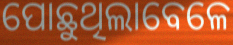
ପୋଛୁଥିଲାବେଳେ